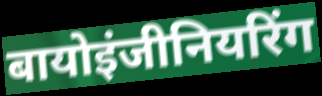
बायोइंजीनियरिंग